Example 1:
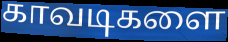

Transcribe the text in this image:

காவடிகளை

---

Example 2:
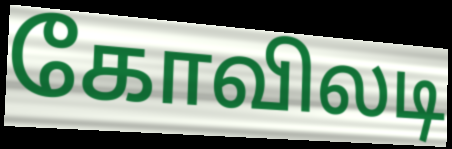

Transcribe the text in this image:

கோவிலடி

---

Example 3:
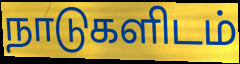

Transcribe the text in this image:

நாடுகளிடம்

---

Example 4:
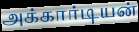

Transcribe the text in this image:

அக்கார்டியன்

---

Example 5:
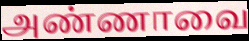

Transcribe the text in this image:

அண்ணாவை